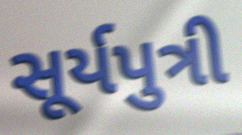
સૂર્યપુત્રી